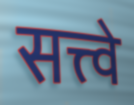
सत्त्वे